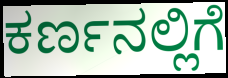
ಕರ್ಣನಲ್ಲಿಗೆ